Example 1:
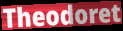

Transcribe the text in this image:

Theodoret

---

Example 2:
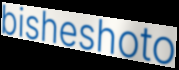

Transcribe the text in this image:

bisheshoto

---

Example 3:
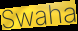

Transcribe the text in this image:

Swaha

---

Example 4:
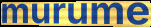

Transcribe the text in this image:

murume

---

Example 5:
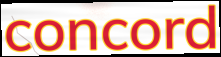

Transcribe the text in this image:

concord